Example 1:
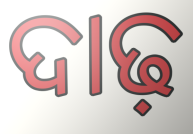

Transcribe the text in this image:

ଦାଢ଼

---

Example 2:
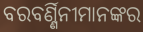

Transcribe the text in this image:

ବରବର୍ଣ୍ଣିନୀମାନଙ୍କର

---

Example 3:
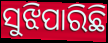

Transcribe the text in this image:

ସୁଝିପାରିଛି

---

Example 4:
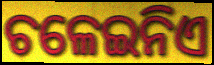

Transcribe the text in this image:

ଚଳେଇନିଏ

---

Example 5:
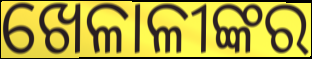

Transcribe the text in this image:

ଖେଳାଳୀଙ୍କର